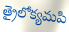
త్రైలోక్యమపి